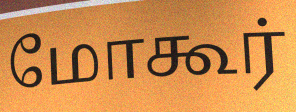
மோகூர்